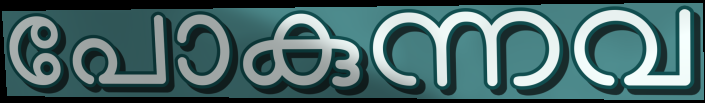
പോകുന്നവ